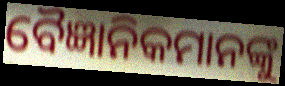
ବୈଜ୍ଞାନିକମାନଙ୍କୁ